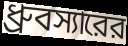
ধ্রুবস্যারের